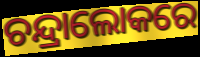
ଚନ୍ଦ୍ରାଲୋକରେ